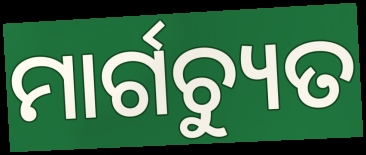
ମାର୍ଗଚ୍ୟୁତ